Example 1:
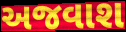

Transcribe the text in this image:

અજવાશ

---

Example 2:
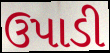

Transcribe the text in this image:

ઉપાડી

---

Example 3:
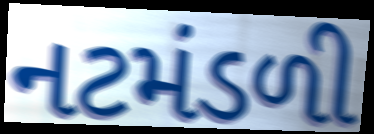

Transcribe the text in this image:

નટમંડળી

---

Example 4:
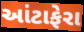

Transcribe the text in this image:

આંટાફેરા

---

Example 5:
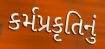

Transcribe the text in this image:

કર્મપ્રકૃતિનું